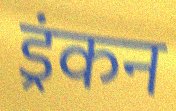
ड्रंकन